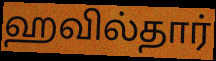
ஹவில்தார்